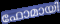
ഫോമായി